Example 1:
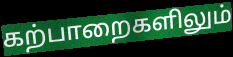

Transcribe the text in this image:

கற்பாறைகளிலும்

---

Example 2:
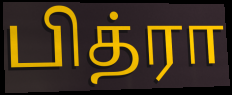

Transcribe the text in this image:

பித்ரா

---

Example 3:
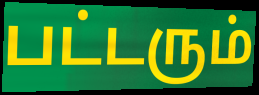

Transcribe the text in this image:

பட்டரும்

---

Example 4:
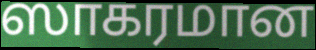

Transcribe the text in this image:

ஸாகரமான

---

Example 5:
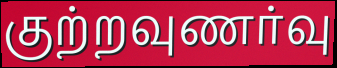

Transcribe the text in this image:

குற்றவுணர்வு